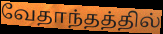
வேதாந்தத்தில்